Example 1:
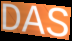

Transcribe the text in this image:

DAS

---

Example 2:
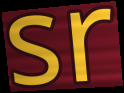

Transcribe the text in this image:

sr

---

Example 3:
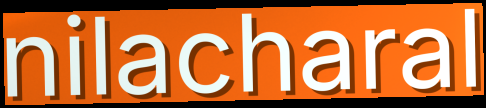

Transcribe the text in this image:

nilacharal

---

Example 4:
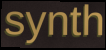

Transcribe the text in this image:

synth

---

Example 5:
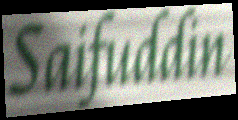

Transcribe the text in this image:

Saifuddin